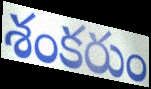
శంకరుం